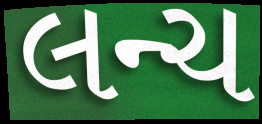
લન્ચ